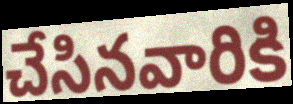
చేసినవారికి